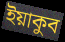
ইয়াকুব